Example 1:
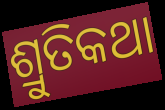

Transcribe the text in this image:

ଶ୍ରୁତିକଥା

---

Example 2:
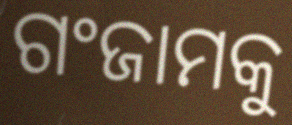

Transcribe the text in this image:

ଗଂଜାମକୁ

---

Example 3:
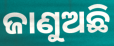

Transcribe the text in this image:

ଜାଣୁଅଛି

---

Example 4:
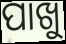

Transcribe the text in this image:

ପାଖୁ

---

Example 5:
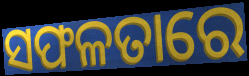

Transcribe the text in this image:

ସଫଳତାରେ